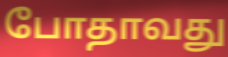
போதாவது